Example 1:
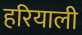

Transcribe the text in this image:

हरियाली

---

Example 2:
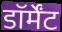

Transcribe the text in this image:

डॉर्मेंट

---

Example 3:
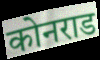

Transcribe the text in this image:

कोनराड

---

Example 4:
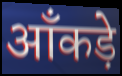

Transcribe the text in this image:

आँकड़े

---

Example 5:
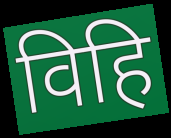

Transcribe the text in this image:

विहि